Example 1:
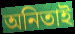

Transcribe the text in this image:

অনিতাই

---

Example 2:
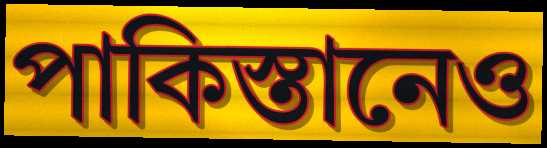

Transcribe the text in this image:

পাকিস্তানেও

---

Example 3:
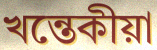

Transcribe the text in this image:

খন্তেকীয়া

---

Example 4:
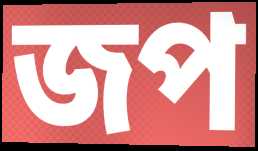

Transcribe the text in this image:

জপ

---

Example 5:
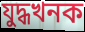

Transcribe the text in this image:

যুদ্ধখনক